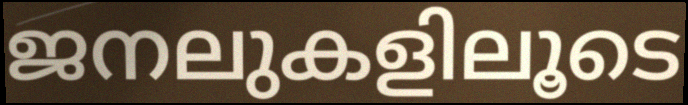
ജനലുകളിലൂടെ